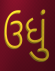
ઉધું